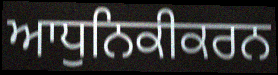
ਆਧੁਨਿਕੀਕਰਨ